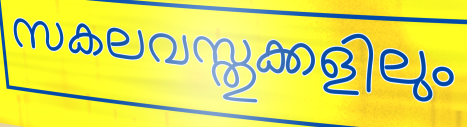
സകലവസ്തുക്കളിലും